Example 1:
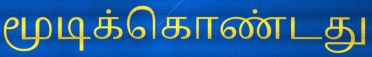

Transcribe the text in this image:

மூடிக்கொண்டது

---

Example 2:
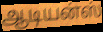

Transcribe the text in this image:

ஆடியன்ஸ்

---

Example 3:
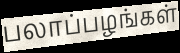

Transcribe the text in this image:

பலாப்பழங்கள்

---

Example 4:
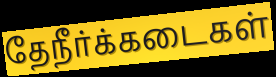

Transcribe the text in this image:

தேநீர்க்கடைகள்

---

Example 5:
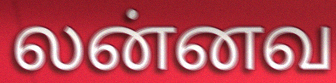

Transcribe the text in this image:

லன்னவ